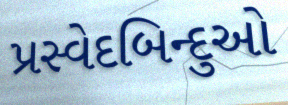
પ્રસ્વેદબિન્દુઓ